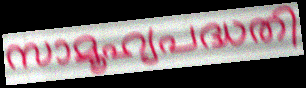
സാമൂഹ്യപദ്ധതി